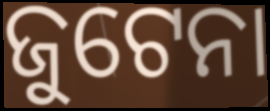
ଜୁଟେନା